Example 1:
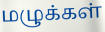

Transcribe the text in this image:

மழுக்கள்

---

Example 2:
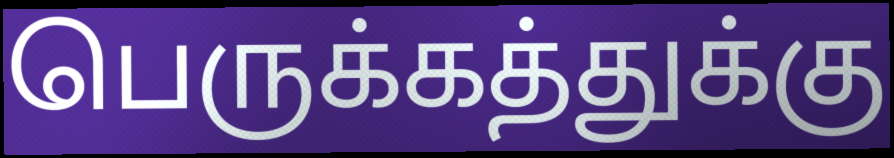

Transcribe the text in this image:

பெருக்கத்துக்கு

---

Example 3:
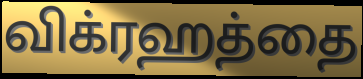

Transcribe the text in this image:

விக்ரஹத்தை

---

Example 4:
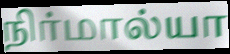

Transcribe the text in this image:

நிர்மால்யா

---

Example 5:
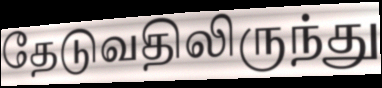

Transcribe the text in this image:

தேடுவதிலிருந்து